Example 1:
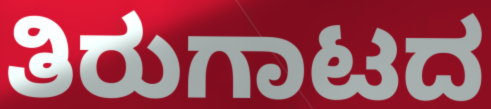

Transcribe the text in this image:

ತಿರುಗಾಟದ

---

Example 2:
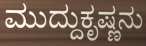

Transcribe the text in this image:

ಮುದ್ದುಕೃಷ್ಣನು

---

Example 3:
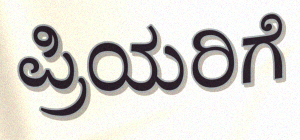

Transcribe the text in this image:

ಪ್ರಿಯರಿಗೆ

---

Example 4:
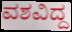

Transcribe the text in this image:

ವಶವಿದ್ದ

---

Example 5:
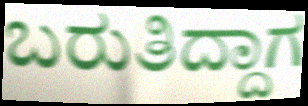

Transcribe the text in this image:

ಬರುತಿದ್ದಾಗ